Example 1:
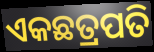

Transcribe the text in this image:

ଏକଛତ୍ରପତି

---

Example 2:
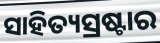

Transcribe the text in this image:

ସାହିତ୍ୟସ୍ରଷ୍ଟାର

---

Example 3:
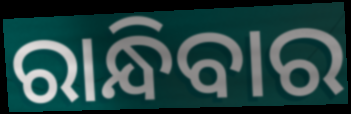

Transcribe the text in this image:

ରାନ୍ଧିବାର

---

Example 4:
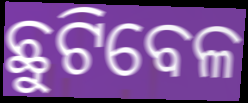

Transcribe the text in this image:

ଛୁଟିବେଳ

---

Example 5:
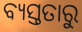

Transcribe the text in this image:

ବ୍ୟସ୍ତତାରୁ